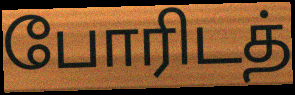
போரிடத்